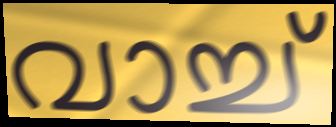
വാച്ച്